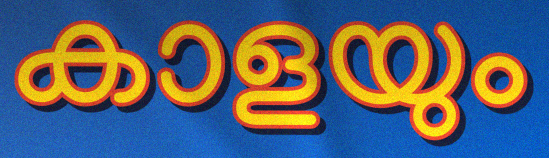
കാളയും